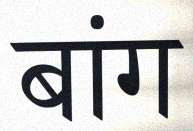
बांग